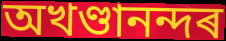
অখণ্ডানন্দৰ